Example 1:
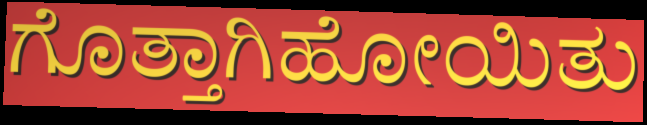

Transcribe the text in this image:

ಗೊತ್ತಾಗಿಹೋಯಿತು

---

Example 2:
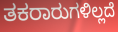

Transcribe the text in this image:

ತಕರಾರುಗಳಿಲ್ಲದೆ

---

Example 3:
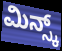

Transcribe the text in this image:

ಮಿನ್ಸ್ಕ್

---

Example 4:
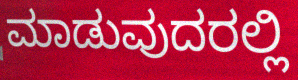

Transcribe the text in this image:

ಮಾಡುವುದರಲ್ಲಿ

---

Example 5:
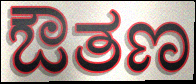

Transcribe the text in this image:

ಔತಣ